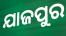
ଯାଜପୁର